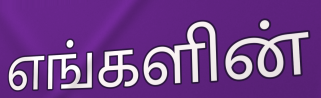
எங்களின்